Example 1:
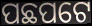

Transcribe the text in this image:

ପଛପଟେ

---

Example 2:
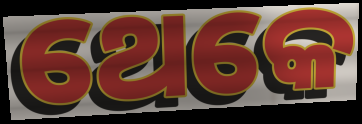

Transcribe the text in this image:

ଥେକେ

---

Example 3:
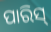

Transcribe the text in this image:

ପାରିସ୍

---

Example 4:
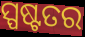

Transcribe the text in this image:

ସ୍ପଷ୍ଟତର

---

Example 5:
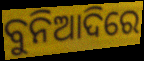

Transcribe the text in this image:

ବୁନିଆଦିରେ